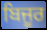
ਬਿਜੂਰ